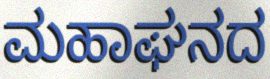
ಮಹಾಘನದ